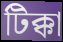
টিক্কা